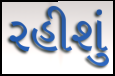
રહીશું